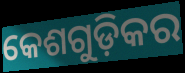
କେଶଗୁଡ଼ିକର